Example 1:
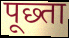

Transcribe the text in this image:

पूछ्ता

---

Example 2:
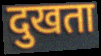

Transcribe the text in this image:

दुखता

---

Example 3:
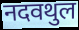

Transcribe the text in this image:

नदवथुल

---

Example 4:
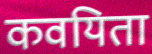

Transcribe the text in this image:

कवयिता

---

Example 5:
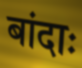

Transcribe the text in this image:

बांदाः